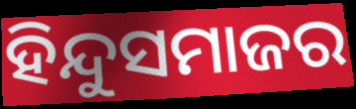
ହିନ୍ଦୁସମାଜର